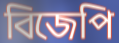
বিজেপি